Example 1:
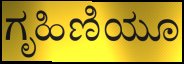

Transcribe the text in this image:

ಗೃಹಿಣಿಯೂ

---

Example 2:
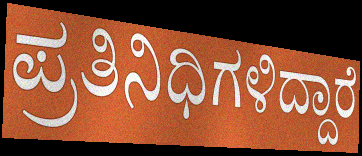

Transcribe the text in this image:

ಪ್ರತಿನಿಧಿಗಳಿದ್ದಾರೆ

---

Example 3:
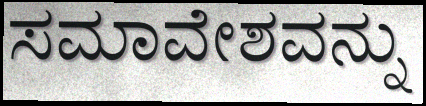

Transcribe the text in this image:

ಸಮಾವೇಶವನ್ನು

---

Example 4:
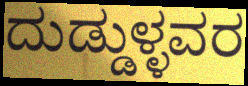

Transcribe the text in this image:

ದುಡ್ಡುಳ್ಳವರ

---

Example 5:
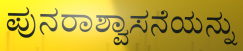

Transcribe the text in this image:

ಪುನರಾಶ್ವಾಸನೆಯನ್ನು